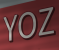
YOZ